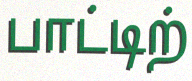
பாட்டிற்